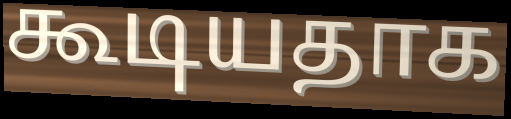
கூடியதாக